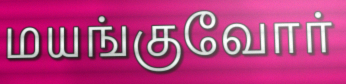
மயங்குவோர்